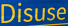
Disuse